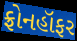
ફ્રોનહૉફર